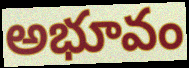
అభూవం